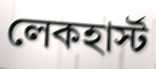
লেকহার্স্ট